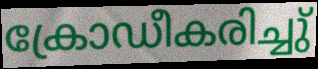
ക്രോഡീകരിച്ചു്